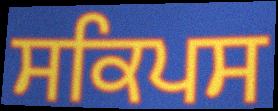
ਸਕਿਪਸ